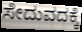
ಸೇದುವದಕ್ಕೆ